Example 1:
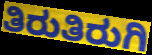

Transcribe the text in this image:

ತಿರುತಿರುಗಿ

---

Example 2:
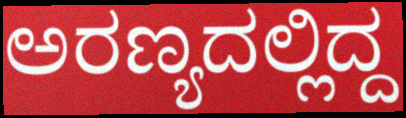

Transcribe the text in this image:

ಅರಣ್ಯದಲ್ಲಿದ್ದ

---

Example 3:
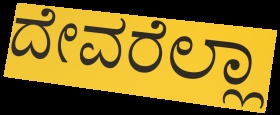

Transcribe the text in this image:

ದೇವರೆಲ್ಲಾ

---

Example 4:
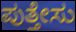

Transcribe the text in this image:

ಪುತ್ತೇಸು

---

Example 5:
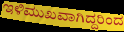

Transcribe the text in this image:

ಇಳಿಮುಖವಾಗಿದ್ದರಿಂದ